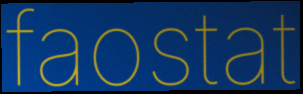
faostat